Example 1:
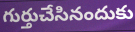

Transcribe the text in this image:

గుర్తుచేసినందుకు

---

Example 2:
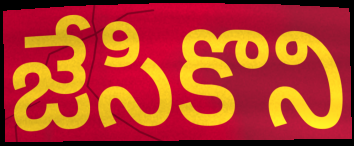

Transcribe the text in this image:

జేసికొని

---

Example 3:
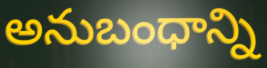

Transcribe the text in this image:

అనుబంధాన్ని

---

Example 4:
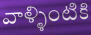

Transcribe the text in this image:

వాళ్ళింటికి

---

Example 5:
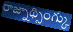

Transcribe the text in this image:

రాజ్నాథ్సింగ్కు